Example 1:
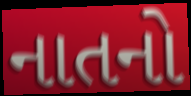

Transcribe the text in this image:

નાતનો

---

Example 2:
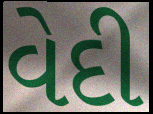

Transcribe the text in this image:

વેદી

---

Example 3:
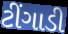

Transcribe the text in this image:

ટીંગાડી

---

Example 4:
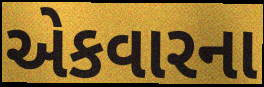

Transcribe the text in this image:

એકવારના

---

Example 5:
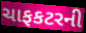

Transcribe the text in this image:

ચાફકટરની